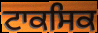
ਟਾਕਸਿਕ